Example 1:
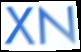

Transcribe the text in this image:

XN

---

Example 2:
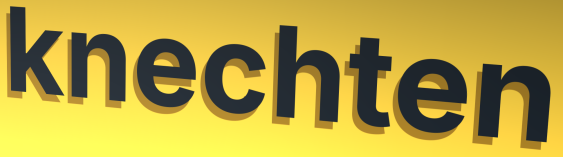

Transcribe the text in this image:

knechten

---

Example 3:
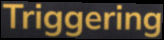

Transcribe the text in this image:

Triggering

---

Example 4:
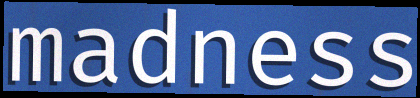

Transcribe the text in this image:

madness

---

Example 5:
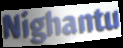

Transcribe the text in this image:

Nighantu